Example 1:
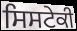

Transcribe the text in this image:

ਸਿਸਟੇਕੀ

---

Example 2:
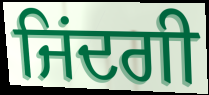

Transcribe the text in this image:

ਜਿਂਦਗੀ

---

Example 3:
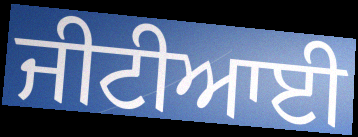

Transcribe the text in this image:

ਜੀਟੀਆਈ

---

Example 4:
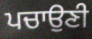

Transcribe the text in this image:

ਪਚਾਉਣੀ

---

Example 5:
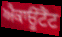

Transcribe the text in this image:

ਐਕਾਊਂਟੈਂਟ